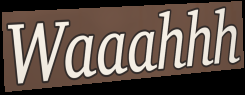
Waaahhh